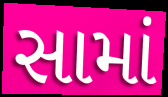
સામાં